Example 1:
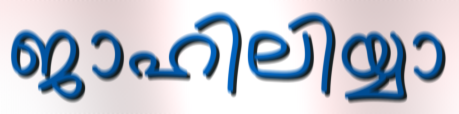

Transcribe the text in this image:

ജാഹിലിയ്യാ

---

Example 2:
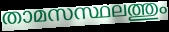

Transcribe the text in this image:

താമസസ്ഥലത്തും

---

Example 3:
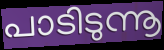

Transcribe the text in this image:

പാടിടുന്നൂ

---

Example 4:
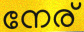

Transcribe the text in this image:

നേര്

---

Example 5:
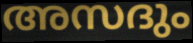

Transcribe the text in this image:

അസദും